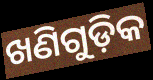
ଖଣିଗୁଡ଼ିକ